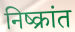
निष्क्रांत